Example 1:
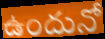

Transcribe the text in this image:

ఉందునో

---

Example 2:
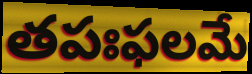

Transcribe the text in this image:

తపఃఫలమే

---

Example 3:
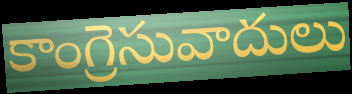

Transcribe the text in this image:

కాంగ్రెసువాదులు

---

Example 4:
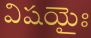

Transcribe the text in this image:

విషయైః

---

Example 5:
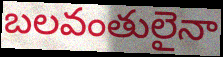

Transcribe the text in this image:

బలవంతులైనా